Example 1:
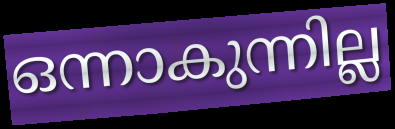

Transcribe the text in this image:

ഒന്നാകുന്നില്ല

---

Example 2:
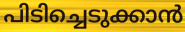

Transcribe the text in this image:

പിടിച്ചെടുക്കാൻ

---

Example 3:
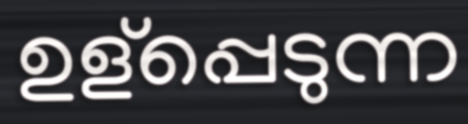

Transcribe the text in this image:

ഉള്പ്പെടുന്ന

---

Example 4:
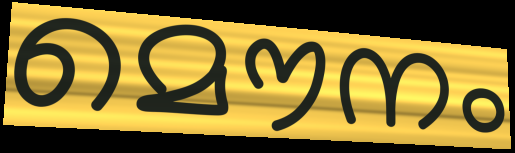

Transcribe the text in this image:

മൌനം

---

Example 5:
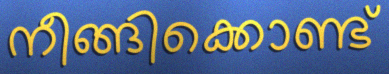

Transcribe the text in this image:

നീങ്ങിക്കൊണ്ട്